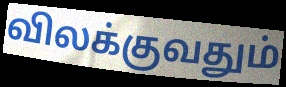
விலக்குவதும்